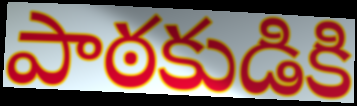
పాఠకుడికి